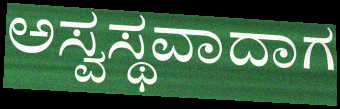
ಅಸ್ವಸ್ಥವಾದಾಗ